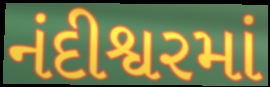
નંદીશ્વરમાં